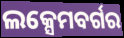
ଲକ୍ସେମବର୍ଗର